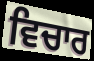
ਵਿਚਾਰ